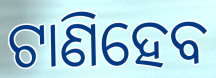
ଟାଣିହେବ